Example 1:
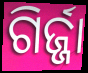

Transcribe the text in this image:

ଗିର୍ଜ୍ଜା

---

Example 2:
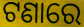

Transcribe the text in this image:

ଟଣାରେ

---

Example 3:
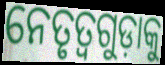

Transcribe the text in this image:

ନେତୃତ୍ୱଗୁଡ଼ାକୁ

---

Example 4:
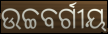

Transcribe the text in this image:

ଉଚ୍ଚବର୍ଗୀୟ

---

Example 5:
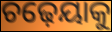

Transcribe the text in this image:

ଚଢ଼େୟାକୁ